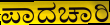
ಪಾದಚಾರಿ